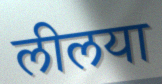
लीलया